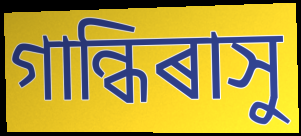
গান্ধিৰাসু